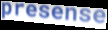
presense